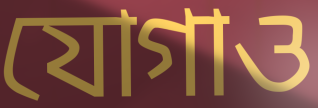
যোগাও